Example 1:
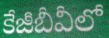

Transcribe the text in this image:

కేజీబీవీలో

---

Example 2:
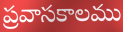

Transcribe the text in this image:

ప్రవాసకాలము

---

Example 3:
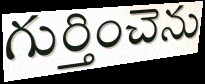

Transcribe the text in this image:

గుర్తించెను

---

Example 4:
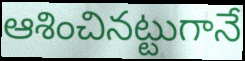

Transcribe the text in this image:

ఆశించినట్టుగానే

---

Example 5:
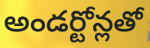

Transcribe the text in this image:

అండర్టోన్లతో